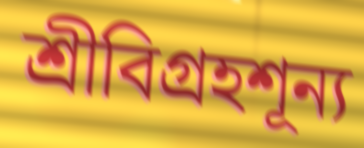
শ্রীবিগ্রহশূন্য